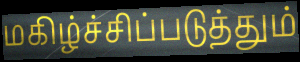
மகிழ்ச்சிப்படுத்தும்